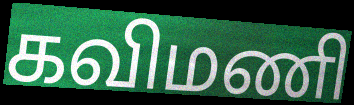
கவிமணி